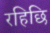
रहिछि